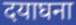
दयाघना